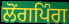
ਲੋਂਗਪਿੰਗ